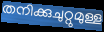
തനിക്കുചുറ്റുമുള്ള